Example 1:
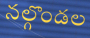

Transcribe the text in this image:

నల్గొండల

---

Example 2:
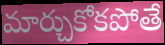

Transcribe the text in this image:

మార్చుకోకపోతే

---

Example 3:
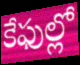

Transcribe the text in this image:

కేఫుల్లో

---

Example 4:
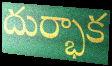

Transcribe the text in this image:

దుర్భాక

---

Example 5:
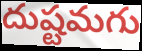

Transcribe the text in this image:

దుష్టమగు